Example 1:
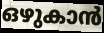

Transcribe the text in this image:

ഒഴുകാൻ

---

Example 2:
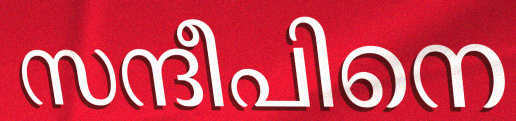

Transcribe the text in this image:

സന്ദീപിനെ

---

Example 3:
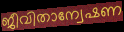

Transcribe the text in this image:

ജീവിതാന്വേഷണ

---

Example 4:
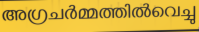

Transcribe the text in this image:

അഗ്രചർമ്മത്തിൽവെച്ചു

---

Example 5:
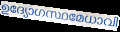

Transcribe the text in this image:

ഉദ്യോഗസ്ഥമേധാവി